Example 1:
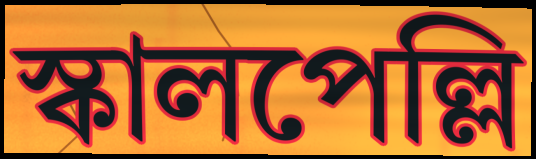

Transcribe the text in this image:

স্কালপেল্লি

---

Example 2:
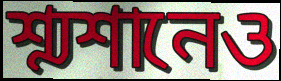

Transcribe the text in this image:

শ্মশানেও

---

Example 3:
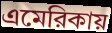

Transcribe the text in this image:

এমেরিকায়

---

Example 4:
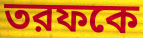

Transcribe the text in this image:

তরফকে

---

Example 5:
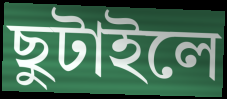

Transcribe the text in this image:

ছুটাইলে